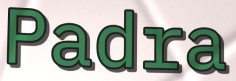
Padra